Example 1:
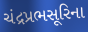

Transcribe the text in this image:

ચંદ્રપ્રભસૂરિના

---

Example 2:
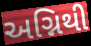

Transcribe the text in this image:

અગ્નિથી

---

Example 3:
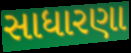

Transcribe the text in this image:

સાધારણા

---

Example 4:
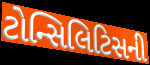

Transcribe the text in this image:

ટોન્સિલિટિસની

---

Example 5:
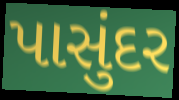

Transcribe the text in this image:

પાસુંદર